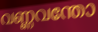
വണ്ണവന്തോ